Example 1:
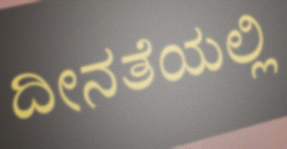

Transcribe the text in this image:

ದೀನತೆಯಲ್ಲಿ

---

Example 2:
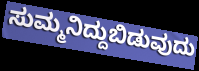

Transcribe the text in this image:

ಸುಮ್ಮನಿದ್ದುಬಿಡುವುದು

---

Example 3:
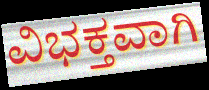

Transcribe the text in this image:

ವಿಭಕ್ತವಾಗಿ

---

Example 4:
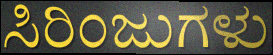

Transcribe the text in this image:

ಸಿರಿಂಜುಗಳು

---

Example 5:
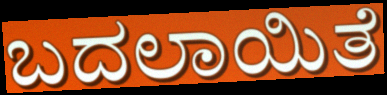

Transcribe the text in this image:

ಬದಲಾಯಿತೆ